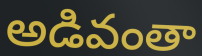
అడివంతా